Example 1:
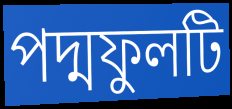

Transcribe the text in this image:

পদ্মফুলটি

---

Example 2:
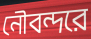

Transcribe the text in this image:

নৌবন্দরে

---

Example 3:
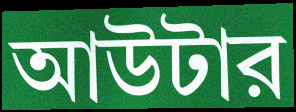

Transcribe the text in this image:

আউটার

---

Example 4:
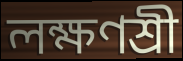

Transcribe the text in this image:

লক্ষণশ্রী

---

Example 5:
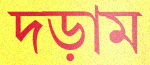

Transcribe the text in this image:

দড়াম